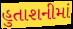
હુતાશનીમાં